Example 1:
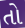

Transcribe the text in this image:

તો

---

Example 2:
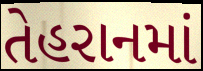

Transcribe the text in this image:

તેહરાનમાં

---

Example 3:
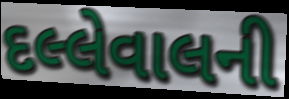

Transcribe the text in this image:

દલ્લેવાલની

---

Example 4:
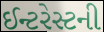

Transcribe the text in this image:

ઈન્ટરેસ્ટની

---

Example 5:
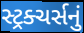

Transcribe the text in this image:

સ્ટ્રક્ચર્સનું